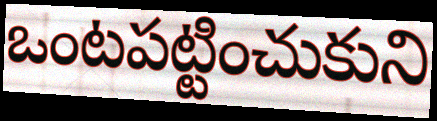
ఒంటపట్టించుకుని